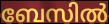
ബേസിൽ